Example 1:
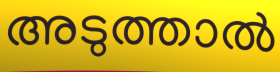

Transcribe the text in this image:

അടുത്താൽ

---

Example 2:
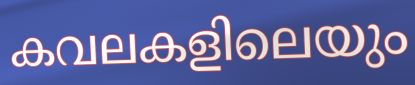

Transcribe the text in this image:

കവലകളിലെയും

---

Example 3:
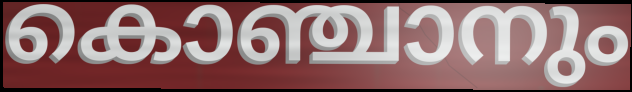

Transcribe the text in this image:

കൊഞ്ചാനും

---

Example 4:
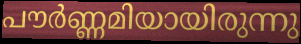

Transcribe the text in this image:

പൗർണ്ണമിയായിരുന്നു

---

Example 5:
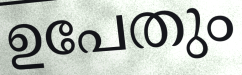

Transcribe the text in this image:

ഉപേതും